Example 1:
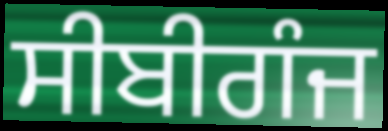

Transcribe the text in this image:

ਸੀਬੀਗੰਜ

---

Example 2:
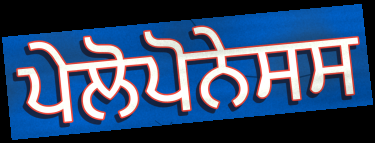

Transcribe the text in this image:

ਪੇਲੋਪੋਨੇਸਸ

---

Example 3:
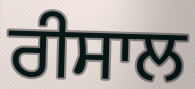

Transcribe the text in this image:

ਰੀਸਾਲ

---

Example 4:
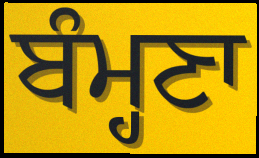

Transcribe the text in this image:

ਬੰਮ੍ਹਣਾ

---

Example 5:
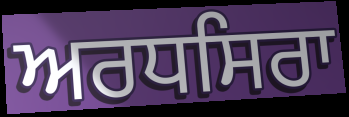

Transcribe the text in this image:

ਅਰਧਸਿਰਾ